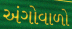
અંગોવાળો